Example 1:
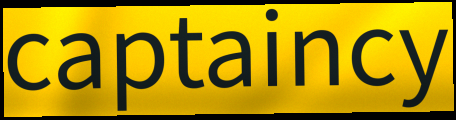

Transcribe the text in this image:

captaincy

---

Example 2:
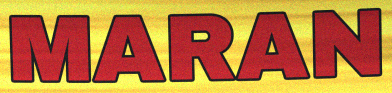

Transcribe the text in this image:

MARAN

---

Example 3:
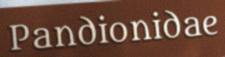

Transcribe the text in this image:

Pandionidae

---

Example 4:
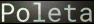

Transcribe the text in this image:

Poleta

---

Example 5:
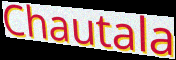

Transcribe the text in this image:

Chautala